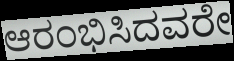
ಆರಂಭಿಸಿದವರೇ